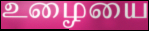
உழையை